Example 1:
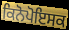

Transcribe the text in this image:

ਕਿਨੋਪੋਇਸਕ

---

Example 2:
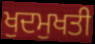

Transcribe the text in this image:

ਖੁਦਮੁਖਤੀ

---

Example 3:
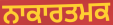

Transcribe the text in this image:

ਨਾਕਾਰਤਮਕ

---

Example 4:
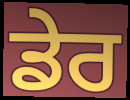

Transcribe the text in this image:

ਡੇਰ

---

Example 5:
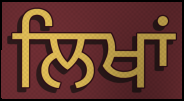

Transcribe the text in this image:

ਲਿਖਾਂ